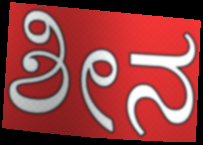
ಶೀನ